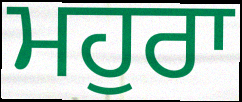
ਮਹੁਰਾ